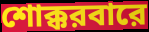
শোক্করবারে